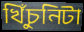
খিঁচুনিটা